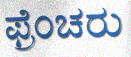
ಫ್ರೆಂಚರು